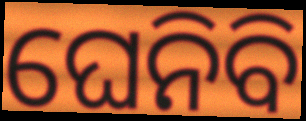
ଘେନିବି